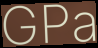
GPa